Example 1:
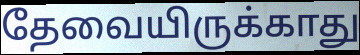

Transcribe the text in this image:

தேவையிருக்காது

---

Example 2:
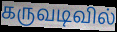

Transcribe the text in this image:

கருவடிவில்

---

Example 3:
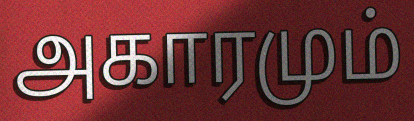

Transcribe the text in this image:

அகாரமும்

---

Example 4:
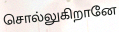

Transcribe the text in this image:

சொல்லுகிறானே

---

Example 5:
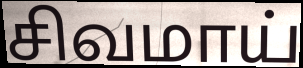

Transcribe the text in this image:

சிவமாய்